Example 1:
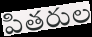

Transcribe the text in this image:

పితరుల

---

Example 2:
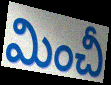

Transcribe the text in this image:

మించీ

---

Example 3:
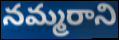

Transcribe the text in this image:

నమ్మరాని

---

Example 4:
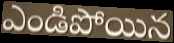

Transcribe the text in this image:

ఎండిపోయిన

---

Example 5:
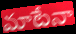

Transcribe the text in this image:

మాటేనా